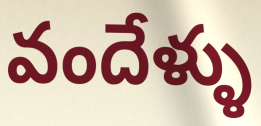
వందేళ్ళు